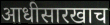
आधीसारखाच